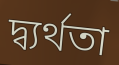
দ্ব্যর্থতা